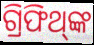
ଗ୍ରିଫିଥ୍‌ଙ୍କ